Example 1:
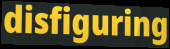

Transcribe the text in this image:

disfiguring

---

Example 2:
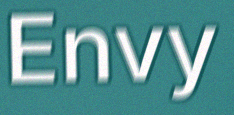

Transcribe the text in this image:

Envy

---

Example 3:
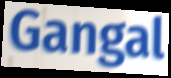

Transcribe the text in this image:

Gangal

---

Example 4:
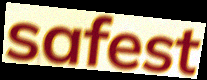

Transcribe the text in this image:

safest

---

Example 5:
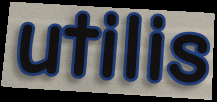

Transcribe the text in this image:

utilis